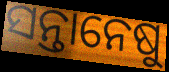
ସନ୍ତାନେଷୁ